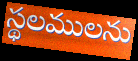
స్థలములను